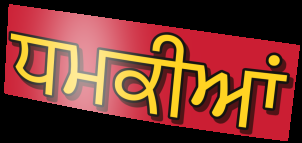
ਧਮਕੀਆਂ